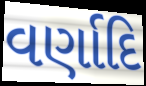
વર્ણાદિ